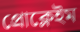
প্রোক্লেইম